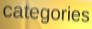
categories